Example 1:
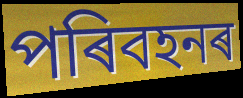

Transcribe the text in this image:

পৰিবহনৰ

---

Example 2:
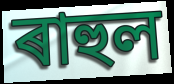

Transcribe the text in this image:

ৰাহুল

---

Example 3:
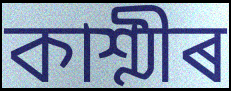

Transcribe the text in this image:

কাশ্মীৰ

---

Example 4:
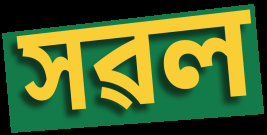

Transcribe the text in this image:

সৱল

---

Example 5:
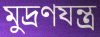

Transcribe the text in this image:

মুদ্ৰণযন্ত্ৰ